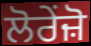
ਲੋਰੇਂਜ਼ੋ